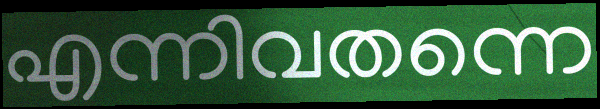
എന്നിവതന്നെ